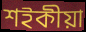
শইকীয়া